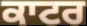
ਕਾਟਰ